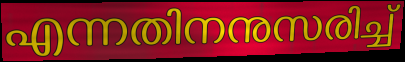
എന്നതിനനുസരിച്ച്